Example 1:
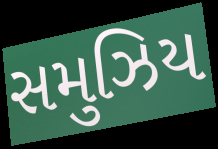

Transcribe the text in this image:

સમુઝિય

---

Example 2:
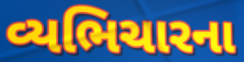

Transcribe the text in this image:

વ્યભિચારના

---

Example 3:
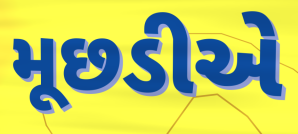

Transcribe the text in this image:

મૂછડીએ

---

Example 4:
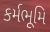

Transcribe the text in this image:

કર્મભૂમિ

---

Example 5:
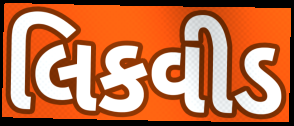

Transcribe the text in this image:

લિકવીડ